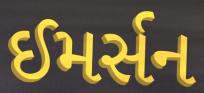
ઈમર્સન